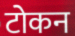
टोकन